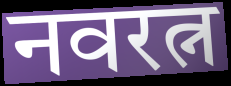
नवरत्न